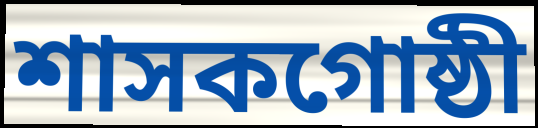
শাসকগোষ্ঠী